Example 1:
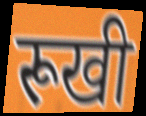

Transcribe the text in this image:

रूखी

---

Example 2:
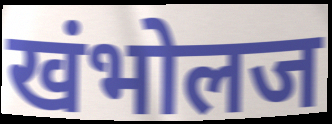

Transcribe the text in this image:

खंभोलज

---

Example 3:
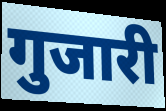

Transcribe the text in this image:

गुजारी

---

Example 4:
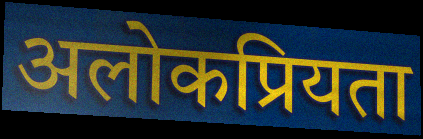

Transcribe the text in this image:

अलोकप्रियता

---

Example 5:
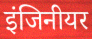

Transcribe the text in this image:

इंजिनीयर